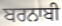
ਬਰਨਾਬੀ